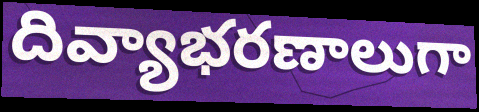
దివ్యాభరణాలుగా